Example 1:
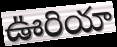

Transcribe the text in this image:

ఊరియా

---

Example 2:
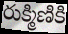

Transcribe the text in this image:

రుక్మిణికి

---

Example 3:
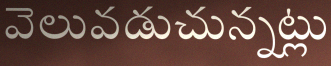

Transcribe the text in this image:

వెలువడుచున్నట్లు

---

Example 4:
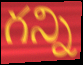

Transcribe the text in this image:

గన్ని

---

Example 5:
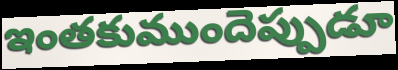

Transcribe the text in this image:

ఇంతకుముందెప్పుడూ